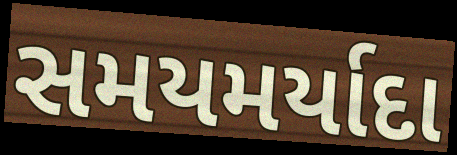
સમયમર્યાદા